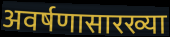
अवर्षणासारख्या